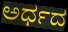
ಅರ್ಧದ